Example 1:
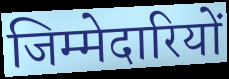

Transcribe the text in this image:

जिम्मेदारियों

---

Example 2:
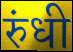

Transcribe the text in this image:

रुंधी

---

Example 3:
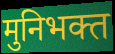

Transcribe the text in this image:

मुनिभक्त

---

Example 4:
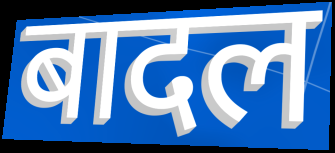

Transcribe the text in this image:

बादल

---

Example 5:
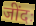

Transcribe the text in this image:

जींदः